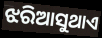
ଝରିଆସୁଥାଏ